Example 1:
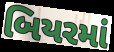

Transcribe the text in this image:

બિયરમાં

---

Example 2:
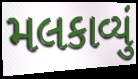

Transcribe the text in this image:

મલકાવ્યું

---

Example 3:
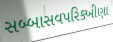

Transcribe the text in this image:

સબ્બાસવપરિક્ખીણા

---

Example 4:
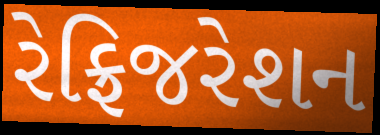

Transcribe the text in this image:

રેફ્રિજરેશન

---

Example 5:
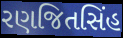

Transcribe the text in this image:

રણજિતસિંહ